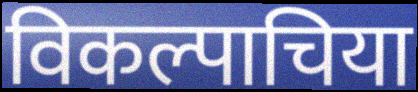
विकल्पाचिया